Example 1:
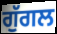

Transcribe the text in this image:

ਗੁੱਗਲ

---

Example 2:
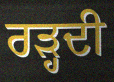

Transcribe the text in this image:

ਰੜ੍ਹਦੀ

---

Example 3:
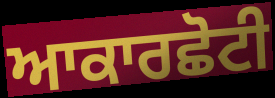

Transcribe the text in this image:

ਆਕਾਰਛੋਟੀ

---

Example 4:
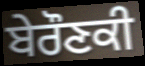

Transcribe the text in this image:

ਬੇਰੌਣਕੀ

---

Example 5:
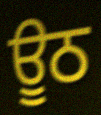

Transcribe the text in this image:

ਊਠ